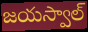
జయస్వాల్